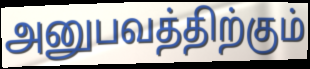
அனுபவத்திற்கும்